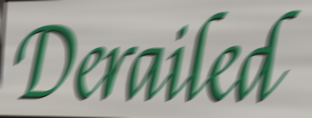
Derailed